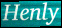
Henly